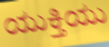
ಯುಕ್ತಿಯು